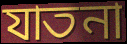
যাতনা